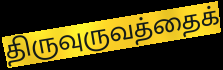
திருவுருவத்தைக்